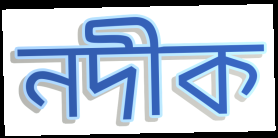
নদীক